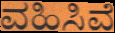
ವಹಿಸಿವೆ